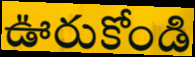
ఊరుకోండి